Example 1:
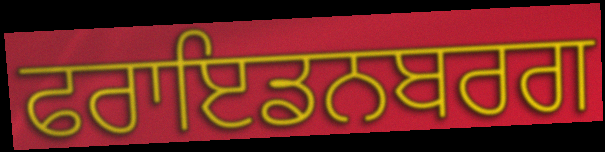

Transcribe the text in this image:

ਫਰਾਇਡਨਬਰਗ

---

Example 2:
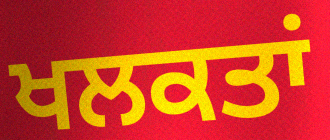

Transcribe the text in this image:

ਖਲਕਤਾਂ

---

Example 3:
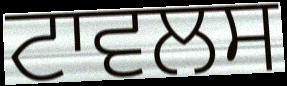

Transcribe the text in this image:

ਟਾਵਲਸ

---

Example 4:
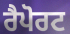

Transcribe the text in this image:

ਰੈਪੋਰਟ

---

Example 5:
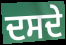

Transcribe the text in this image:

ਦਸਦੇ